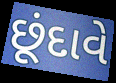
છૂંદાવે